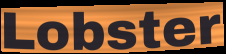
Lobster